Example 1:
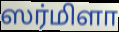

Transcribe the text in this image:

ஸர்மிளா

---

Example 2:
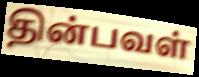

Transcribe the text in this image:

தின்பவள்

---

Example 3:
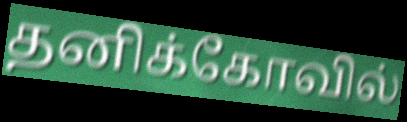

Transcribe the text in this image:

தனிக்கோவில்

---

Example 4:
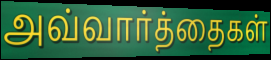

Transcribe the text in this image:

அவ்வார்த்தைகள்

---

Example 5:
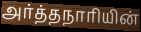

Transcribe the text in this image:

அர்த்தநாரியின்